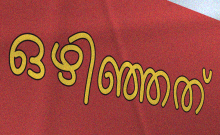
ഒഴിഞ്ഞത്